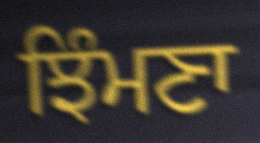
ਝਿੰਮਣਾ